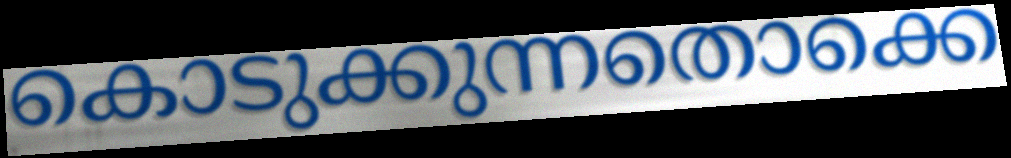
കൊടുക്കുന്നതൊക്കെ